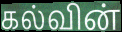
கல்வின்